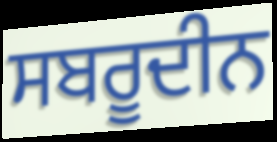
ਸਬਰੂਦੀਨ